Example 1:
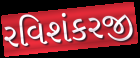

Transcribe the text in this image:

રવિશંકરજી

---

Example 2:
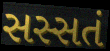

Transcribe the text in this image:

સસ્સતં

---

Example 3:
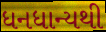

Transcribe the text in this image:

ધનધાન્યથી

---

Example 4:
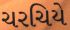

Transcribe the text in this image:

ચરચિયે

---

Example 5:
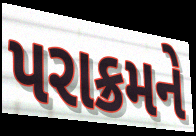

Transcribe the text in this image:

પરાક્રમને